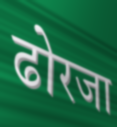
ढोरजा